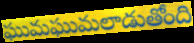
ఘుమఘుమలాడుతోంది